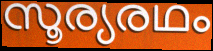
സൂര്യരഥം